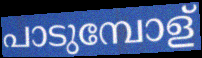
പാടുമ്പോള്